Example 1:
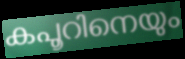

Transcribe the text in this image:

കപൂറിനെയും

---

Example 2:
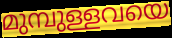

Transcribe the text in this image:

മുമ്പുള്ളവയെ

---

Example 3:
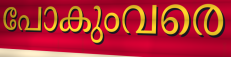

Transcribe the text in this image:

പോകുംവരെ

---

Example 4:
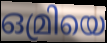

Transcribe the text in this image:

ഒമ്രിയെ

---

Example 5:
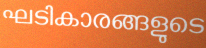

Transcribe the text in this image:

ഘടികാരങ്ങളുടെ